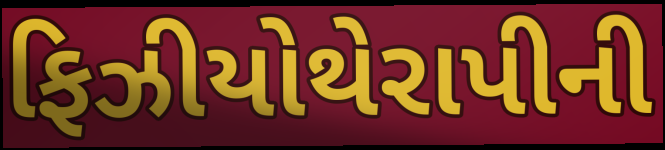
ફિઝીયોથેરાપીની